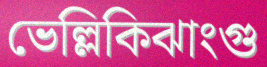
ভেল্লিকিঝাংগু